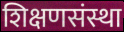
शिक्षणसंस्था